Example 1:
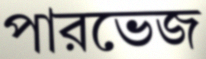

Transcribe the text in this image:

পারভেজ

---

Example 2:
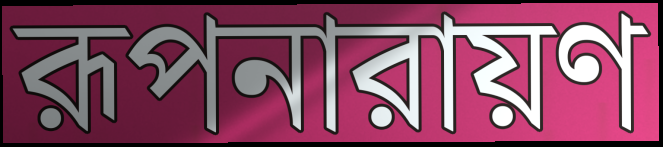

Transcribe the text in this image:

রূপনারায়ণ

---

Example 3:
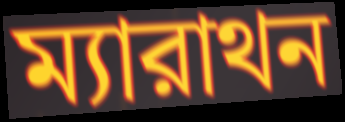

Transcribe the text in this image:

ম্যারাথন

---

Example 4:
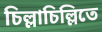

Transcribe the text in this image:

চিল্লাচিল্লিতে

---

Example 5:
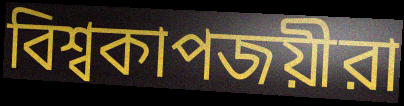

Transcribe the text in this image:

বিশ্বকাপজয়ীরা